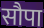
सौपा